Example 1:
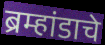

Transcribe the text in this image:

ब्रम्हांडाचे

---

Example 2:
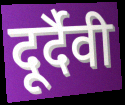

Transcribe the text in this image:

दूर्दैवी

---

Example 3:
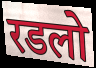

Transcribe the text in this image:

रडलो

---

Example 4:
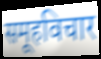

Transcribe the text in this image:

समूहविचार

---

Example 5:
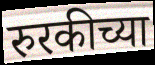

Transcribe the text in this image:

रुरकीच्या